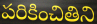
పరికించితిని